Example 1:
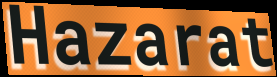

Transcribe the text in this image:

Hazarat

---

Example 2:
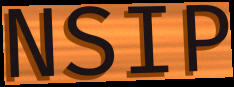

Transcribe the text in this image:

NSIP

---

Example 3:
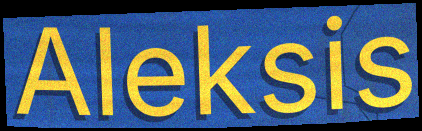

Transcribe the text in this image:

Aleksis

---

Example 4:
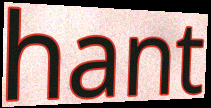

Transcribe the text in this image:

hant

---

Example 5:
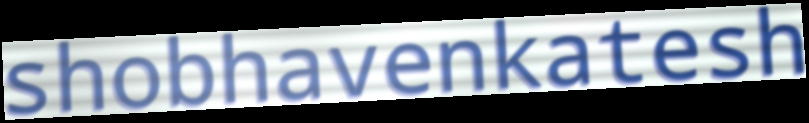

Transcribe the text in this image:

shobhavenkatesh